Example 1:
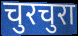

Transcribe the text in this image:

चुरचुरा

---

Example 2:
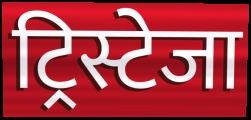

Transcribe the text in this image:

ट्रिस्टेजा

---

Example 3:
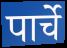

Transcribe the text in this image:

पार्चे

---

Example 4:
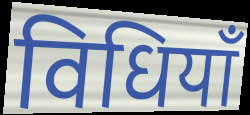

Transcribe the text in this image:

विधियाँ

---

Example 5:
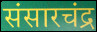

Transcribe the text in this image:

संसारचंद्र